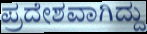
ಪ್ರದೇಶವಾಗಿದ್ದು